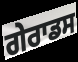
ਗੇਰਾਡਸ